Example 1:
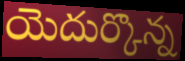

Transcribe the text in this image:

యెదుర్కొన్న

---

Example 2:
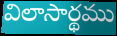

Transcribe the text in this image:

విలాసార్థము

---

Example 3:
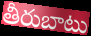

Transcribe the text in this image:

తీరుబాటు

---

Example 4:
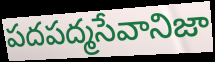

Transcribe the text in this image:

పదపద్మసేవానిజా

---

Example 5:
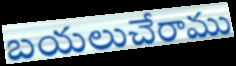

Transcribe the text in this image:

బయలుచేరాము